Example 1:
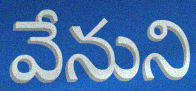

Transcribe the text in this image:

వేనుని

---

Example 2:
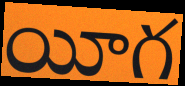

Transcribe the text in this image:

యీగ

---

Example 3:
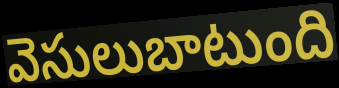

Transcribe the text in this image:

వెసులుబాటుంది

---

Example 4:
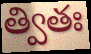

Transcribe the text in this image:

త్వితః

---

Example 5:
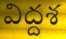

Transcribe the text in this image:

విద్దశ